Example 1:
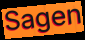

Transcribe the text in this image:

Sagen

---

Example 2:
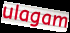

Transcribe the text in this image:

ulagam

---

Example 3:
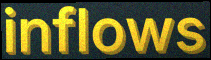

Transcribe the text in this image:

inflows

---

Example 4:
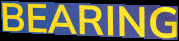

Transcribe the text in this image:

BEARING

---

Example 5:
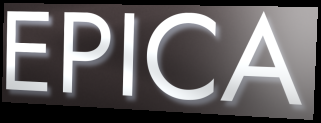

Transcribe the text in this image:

EPICA